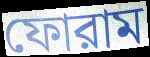
ফোরাম